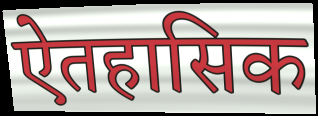
ऐतहासिक